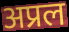
अप्रल